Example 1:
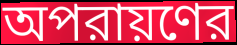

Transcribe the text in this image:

অপরায়ণের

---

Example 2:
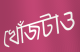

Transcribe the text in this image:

খোঁজটাও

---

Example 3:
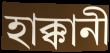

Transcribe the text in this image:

হাক্কানী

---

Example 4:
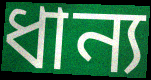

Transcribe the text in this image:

ধান্য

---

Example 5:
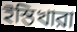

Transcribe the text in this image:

ইস্তিখারা